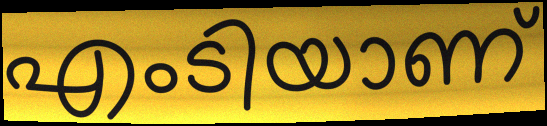
എംടിയാണ്